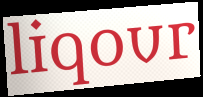
liqour